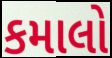
કમાલો